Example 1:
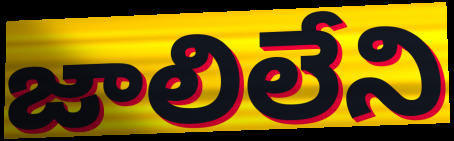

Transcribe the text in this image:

జాలిలేని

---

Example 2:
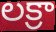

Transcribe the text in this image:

లక్రా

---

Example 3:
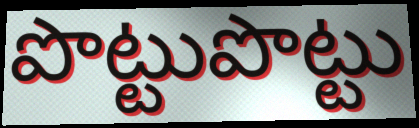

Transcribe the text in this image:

పొట్టుపొట్టు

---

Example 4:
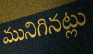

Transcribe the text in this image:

మునిగినట్లు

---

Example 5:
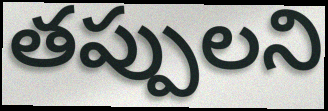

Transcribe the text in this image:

తప్పులని